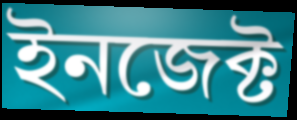
ইনজেক্ট